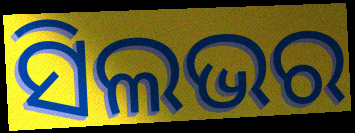
ସିଲଭର